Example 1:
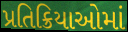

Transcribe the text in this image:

પ્રતિક્રિયાઓમાં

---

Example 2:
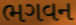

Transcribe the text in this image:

ભગવન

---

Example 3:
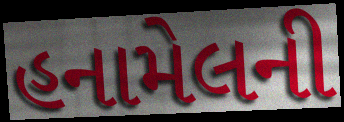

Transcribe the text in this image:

હનામેલની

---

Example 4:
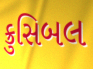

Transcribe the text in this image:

ક્રુસિબલ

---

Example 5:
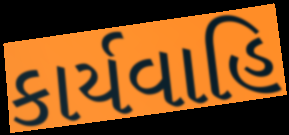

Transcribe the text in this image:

કાર્યવાહિ